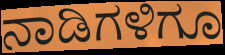
ನಾಡಿಗಳಿಗೂ